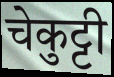
चेकुट्टी